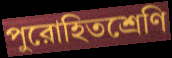
পুরোহিতশ্রেণি